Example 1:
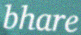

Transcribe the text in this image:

bhare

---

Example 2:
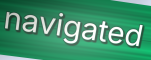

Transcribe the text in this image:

navigated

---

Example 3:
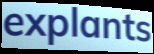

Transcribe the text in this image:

explants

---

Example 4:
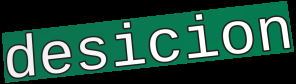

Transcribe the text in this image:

desicion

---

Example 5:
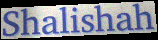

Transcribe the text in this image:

Shalishah